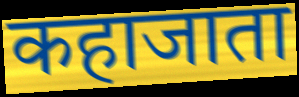
कहाजाता